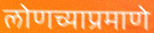
लोणच्याप्रमाणे